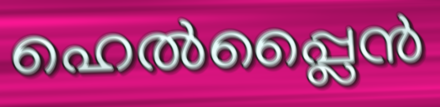
ഹെൽപ്പ്ലൈൻ